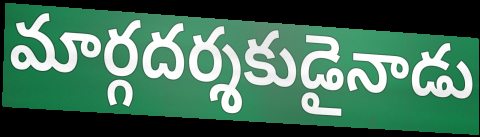
మార్గదర్శకుడైనాడు